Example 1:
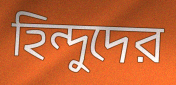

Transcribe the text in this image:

হিন্দুদের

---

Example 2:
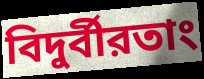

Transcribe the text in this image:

বিদুর্বীরতাং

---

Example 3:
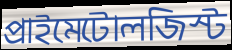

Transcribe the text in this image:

প্রাইমেটোলজিস্ট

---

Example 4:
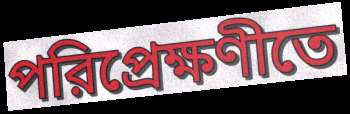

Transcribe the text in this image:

পরিপ্রেক্ষণীতে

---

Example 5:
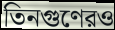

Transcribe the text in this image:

তিনগুণেরও